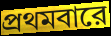
প্রথমবারে